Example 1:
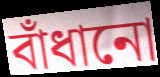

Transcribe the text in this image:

বাঁধানো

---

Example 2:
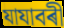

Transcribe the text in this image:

যাযাবৰী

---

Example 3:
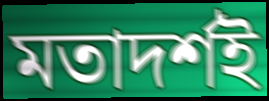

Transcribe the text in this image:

মতাদৰ্শই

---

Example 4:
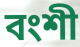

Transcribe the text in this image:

বংশী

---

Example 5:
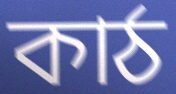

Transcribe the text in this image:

কাঠ